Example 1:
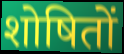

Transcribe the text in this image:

शोषितों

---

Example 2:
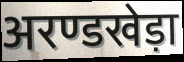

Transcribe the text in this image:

अरण्डखेड़ा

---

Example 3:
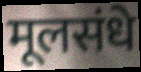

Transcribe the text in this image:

मूलसंधे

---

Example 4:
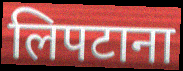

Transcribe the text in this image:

लिपटाना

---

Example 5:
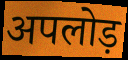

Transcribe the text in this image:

अपलोड़